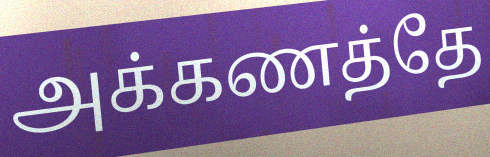
அக்கணத்தே